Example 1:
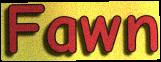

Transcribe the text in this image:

Fawn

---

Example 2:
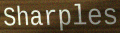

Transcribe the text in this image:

Sharples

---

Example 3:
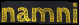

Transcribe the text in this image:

namni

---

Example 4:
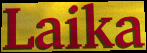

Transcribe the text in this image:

Laika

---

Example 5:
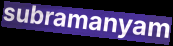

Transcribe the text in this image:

subramanyam